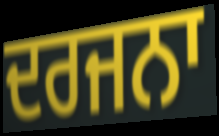
ਦਰਜਨਾ